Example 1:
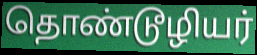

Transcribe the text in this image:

தொண்டூழியர்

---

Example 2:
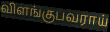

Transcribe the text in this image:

விளங்குபவராய்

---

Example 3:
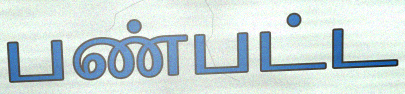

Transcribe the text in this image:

பண்பட்ட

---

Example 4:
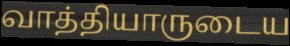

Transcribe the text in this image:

வாத்தியாருடைய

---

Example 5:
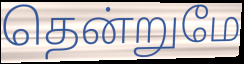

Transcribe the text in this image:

தென்றுமே